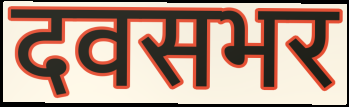
दवसभर